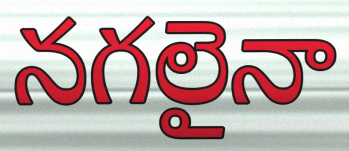
నగలైనా